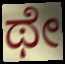
ಥೇ